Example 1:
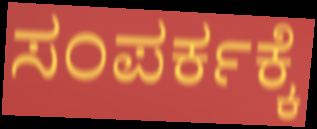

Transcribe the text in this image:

ಸಂಪರ್ಕಕ್ಕೆ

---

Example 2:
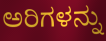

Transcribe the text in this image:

ಅರಿಗಳನ್ನು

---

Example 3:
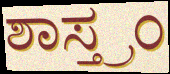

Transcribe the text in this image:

ಶಾಸ್ತ್ರಂ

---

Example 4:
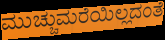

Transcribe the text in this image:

ಮುಚ್ಚುಮರೆಯಿಲ್ಲದಂತೆ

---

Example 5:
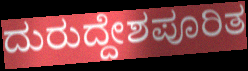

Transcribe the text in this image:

ದುರುದ್ದೇಶಪೂರಿತ